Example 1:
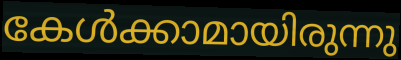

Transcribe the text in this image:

കേൾക്കാമായിരുന്നു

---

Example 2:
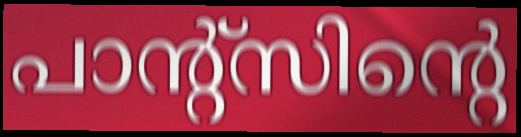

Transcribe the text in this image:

പാന്റ്സിന്റെ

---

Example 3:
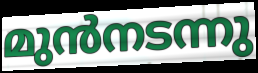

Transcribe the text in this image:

മുൻനടന്നു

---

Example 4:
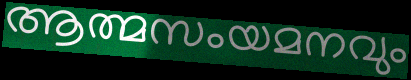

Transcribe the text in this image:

ആത്മസംയമനവും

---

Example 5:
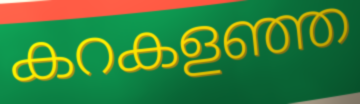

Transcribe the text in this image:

കറകളഞ്ഞ